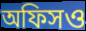
অফিসও